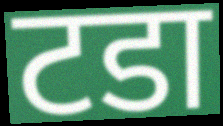
टडा